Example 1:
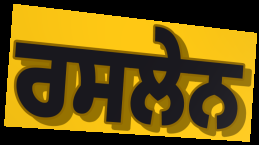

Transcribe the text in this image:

ਰਸਲੇਨ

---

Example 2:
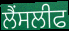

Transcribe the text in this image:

ਲੈਂਸਲੀਫ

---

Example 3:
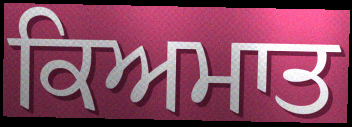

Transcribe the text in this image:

ਕਿਅਮਾਤ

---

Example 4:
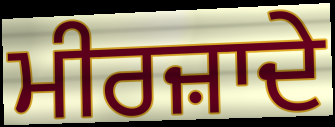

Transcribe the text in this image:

ਮੀਰਜ਼ਾਦੇ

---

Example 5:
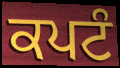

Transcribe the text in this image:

ਕਪਟੰ